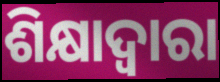
ଶିକ୍ଷାଦ୍ୱାରା